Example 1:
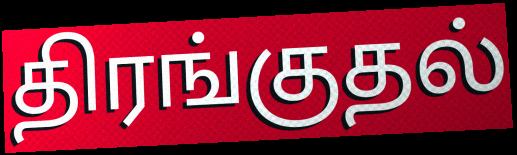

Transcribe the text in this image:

திரங்குதல்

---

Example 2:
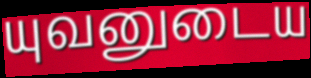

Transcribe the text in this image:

யுவனுடைய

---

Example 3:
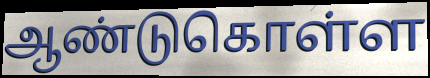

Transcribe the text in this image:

ஆண்டுகொள்ள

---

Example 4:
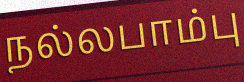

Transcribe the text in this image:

நல்லபாம்பு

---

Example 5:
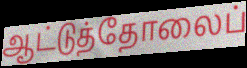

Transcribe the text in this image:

ஆட்டுத்தோலைப்